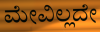
ಮೇವಿಲ್ಲದೇ